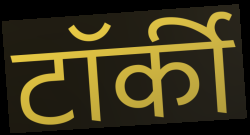
टॉर्की